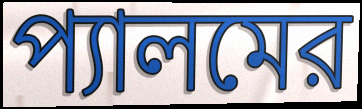
প্যালমের